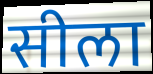
सीला